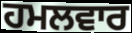
ਹਮਲਵਾਰ